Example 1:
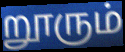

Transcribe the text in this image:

றூரும்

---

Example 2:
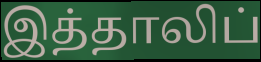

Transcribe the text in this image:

இத்தாலிப்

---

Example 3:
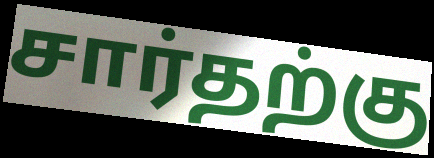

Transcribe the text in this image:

சார்தற்கு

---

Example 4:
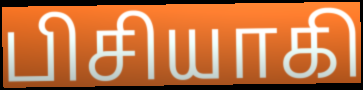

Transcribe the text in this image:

பிசியாகி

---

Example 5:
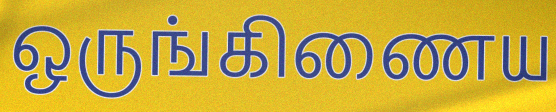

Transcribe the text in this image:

ஒருங்கிணைய